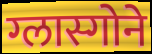
ग्लास्गोने